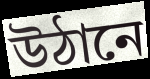
উঠানে